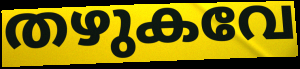
തഴുകവേ